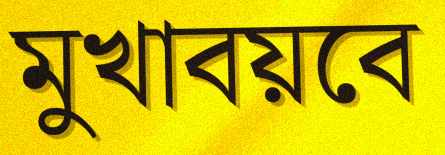
মুখাবয়বে